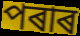
পৰাৰ